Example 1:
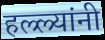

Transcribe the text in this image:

हल्ल्यांनी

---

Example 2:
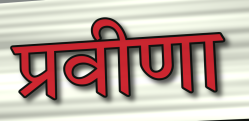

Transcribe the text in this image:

प्रवीणा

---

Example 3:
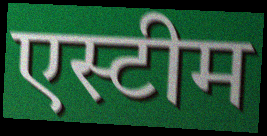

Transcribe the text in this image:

एस्टीम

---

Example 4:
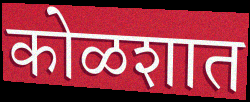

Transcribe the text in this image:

कोळशात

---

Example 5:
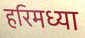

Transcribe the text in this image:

हरिमध्या